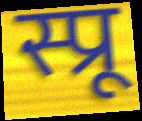
स्प्रू